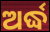
ଅର୍ଦ୍ଧ